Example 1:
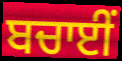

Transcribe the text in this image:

ਬਚਾਈਂ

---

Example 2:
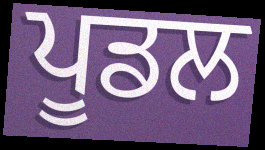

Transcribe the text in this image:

ਪੂਡਲ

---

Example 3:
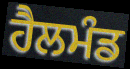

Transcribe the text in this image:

ਹੈਲਮੰਡ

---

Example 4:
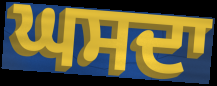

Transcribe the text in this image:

ਘਸਦਾ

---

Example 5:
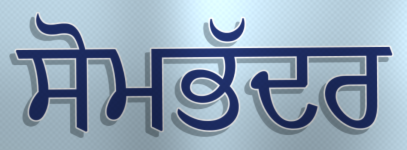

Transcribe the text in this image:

ਸੋਮਭੱਦਰ